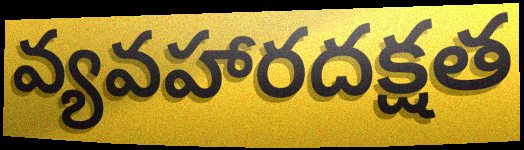
వ్యవహారదక్షత